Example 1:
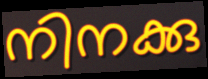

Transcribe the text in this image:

നിനക്കു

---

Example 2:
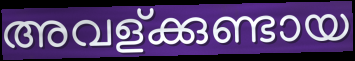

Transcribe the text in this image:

അവള്ക്കുണ്ടായ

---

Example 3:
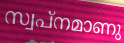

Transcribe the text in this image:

സ്വപ്നമാണു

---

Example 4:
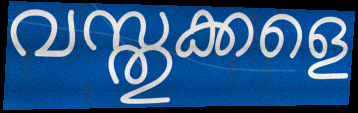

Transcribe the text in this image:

വസ്തുക്കളെ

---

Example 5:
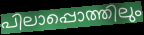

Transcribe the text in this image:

പിലാപ്പൊത്തിലും